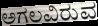
ಅಗಲವಿರುವ